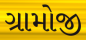
ગ્રામોજી